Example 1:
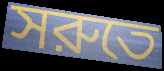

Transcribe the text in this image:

সৰুতে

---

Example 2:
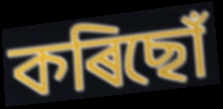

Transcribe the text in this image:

কৰিছোঁ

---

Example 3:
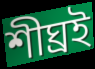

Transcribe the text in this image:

শীঘ্ৰই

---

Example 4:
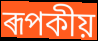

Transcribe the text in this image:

ৰূপকীয়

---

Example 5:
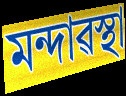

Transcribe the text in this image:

মন্দাৱস্থা